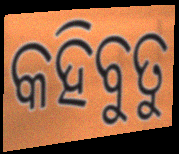
କହିବୁତୁ